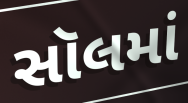
સૉલમાં